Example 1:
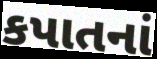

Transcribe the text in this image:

કપાતનાં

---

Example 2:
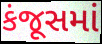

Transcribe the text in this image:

કંજૂસમાં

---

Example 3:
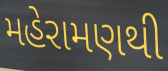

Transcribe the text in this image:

મહેરામણથી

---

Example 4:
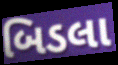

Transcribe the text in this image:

બિડલા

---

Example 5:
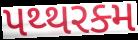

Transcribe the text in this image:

પથ્થરક્મ